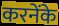
करनेंके